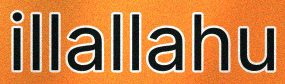
illallahu